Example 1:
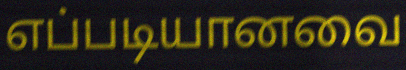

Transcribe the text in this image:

எப்படியானவை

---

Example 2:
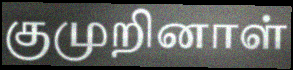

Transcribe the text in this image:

குமுறினாள்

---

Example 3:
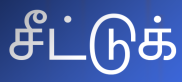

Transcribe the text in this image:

சீட்டுக்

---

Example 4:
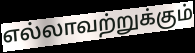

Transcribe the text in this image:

எல்லாவற்றுக்கும்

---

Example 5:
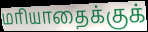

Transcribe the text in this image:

மரியாதைக்குக்